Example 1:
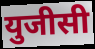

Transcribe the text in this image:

युजीसी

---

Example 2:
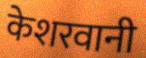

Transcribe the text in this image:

केशरवानी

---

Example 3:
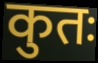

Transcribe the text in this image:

कुतः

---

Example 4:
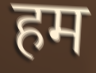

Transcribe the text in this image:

हम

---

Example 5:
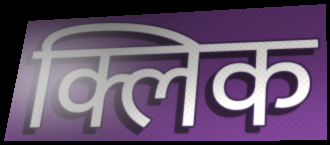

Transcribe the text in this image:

क्लिक